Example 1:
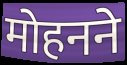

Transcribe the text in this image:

मोहनने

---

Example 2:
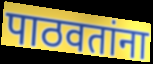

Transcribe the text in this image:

पाठवतांना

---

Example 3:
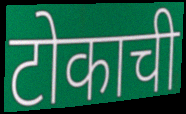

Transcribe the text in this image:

टोकाची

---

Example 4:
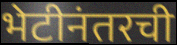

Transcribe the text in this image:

भेटीनंतरची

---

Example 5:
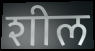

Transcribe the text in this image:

शील